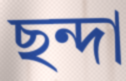
ছন্দা